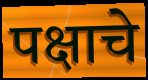
पक्षाचे